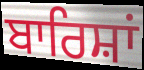
ਬਾਰਿਸ਼ਾਂ